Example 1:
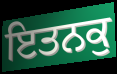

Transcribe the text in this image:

ਇਤਨਕੁ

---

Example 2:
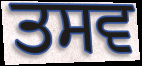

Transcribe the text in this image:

ਤਸਵ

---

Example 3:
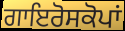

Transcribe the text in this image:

ਗਾਇਰੋਸਕੋਪਾਂ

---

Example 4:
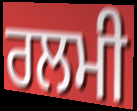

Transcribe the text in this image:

ਰਲਮੀ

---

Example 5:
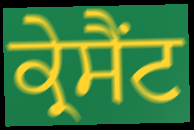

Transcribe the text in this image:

ਕ੍ਰੇਸੈਂਟ